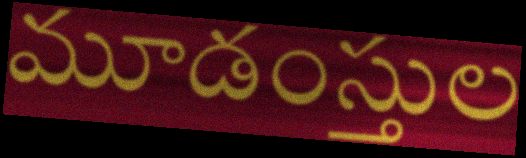
మూడంస్తుల